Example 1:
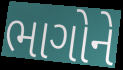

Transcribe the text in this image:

ભાગોને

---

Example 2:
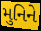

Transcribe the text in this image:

મુનિને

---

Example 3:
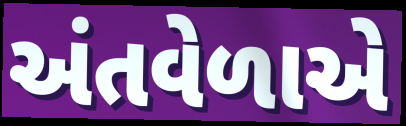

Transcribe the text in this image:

અંતવેળાએ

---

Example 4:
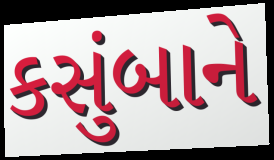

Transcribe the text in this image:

કસુંબાને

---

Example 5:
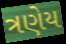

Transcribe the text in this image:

ત્રણેય